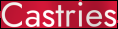
Castries